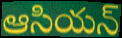
ఆసియన్